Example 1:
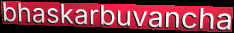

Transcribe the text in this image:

bhaskarbuvancha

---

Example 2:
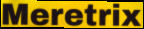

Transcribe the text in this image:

Meretrix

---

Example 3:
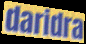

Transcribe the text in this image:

daridra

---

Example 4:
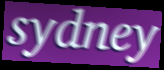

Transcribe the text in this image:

sydney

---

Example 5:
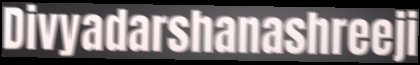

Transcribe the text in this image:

Divyadarshanashreeji